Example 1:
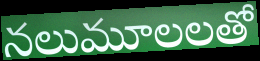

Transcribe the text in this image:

నలుమూలలతో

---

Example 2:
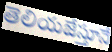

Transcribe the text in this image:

తెలియజేస్తూనే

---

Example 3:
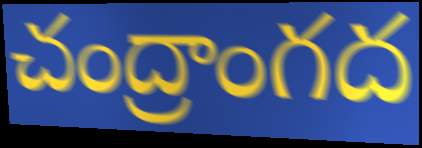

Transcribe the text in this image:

చంద్రాంగద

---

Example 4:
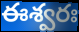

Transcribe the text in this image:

ఈశ్వరః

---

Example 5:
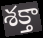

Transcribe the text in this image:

శక్తా